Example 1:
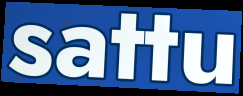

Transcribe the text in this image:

sattu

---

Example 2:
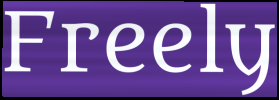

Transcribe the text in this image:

Freely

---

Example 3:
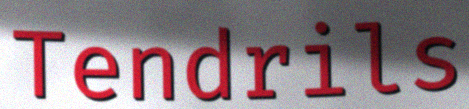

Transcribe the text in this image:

Tendrils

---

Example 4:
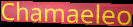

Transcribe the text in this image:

Chamaeleo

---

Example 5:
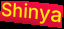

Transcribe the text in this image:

Shinya